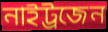
নাইট্ৰজেন